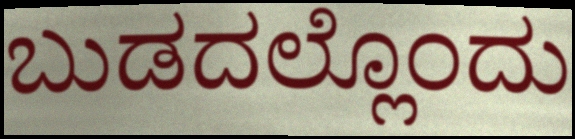
ಬುಡದಲ್ಲೊಂದು